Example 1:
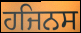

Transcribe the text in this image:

ਹਜਿਨਸ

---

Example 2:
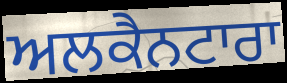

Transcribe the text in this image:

ਅਲਕੈਨਟਾਰਾ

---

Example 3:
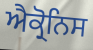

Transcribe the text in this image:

ਐਕ੍ਰੋਨਿਸ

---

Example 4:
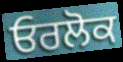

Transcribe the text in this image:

ਓਰਲੋਕ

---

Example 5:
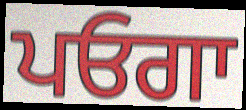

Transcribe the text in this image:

ਪਓਗਾ